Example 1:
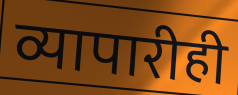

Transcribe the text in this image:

व्यापारीही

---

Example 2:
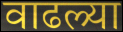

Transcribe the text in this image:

वाढल्या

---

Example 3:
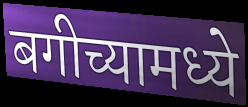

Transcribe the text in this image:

बगीच्यामध्ये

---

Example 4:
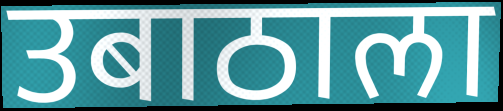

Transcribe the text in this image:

उबाठाला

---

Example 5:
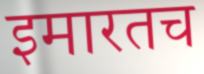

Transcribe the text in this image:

इमारतच